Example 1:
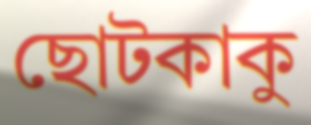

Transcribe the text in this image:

ছোটকাকু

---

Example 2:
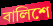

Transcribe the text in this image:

বালিশে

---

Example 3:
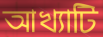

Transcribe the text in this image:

আখ্যাটি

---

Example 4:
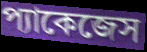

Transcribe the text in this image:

প্যাকেজেস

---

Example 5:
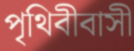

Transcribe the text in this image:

পৃথিবীবাসী